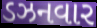
ડઝનવાર